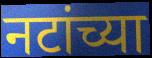
नटांच्या